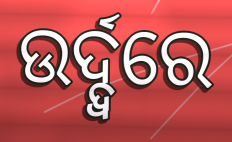
ଉର୍ଦ୍ଦ୍ୱରେ